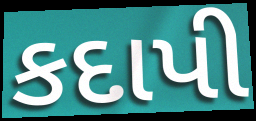
કદાપી